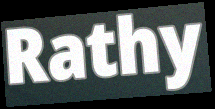
Rathy